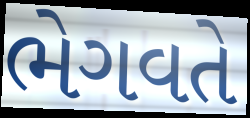
ભેગવતે